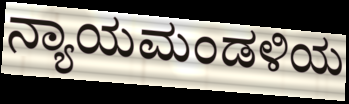
ನ್ಯಾಯಮಂಡಳಿಯ